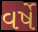
વર્ષે